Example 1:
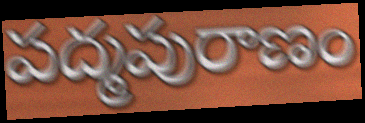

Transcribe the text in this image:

పద్మపురాణం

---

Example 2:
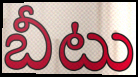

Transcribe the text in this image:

బీటు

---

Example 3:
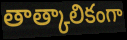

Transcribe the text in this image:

తాత్కాలికంగా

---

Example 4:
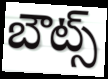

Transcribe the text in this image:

బౌట్స్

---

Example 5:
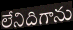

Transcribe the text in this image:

లేనిదిగాను